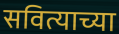
सवित्याच्या